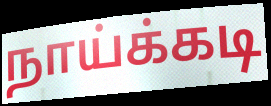
நாய்க்கடி